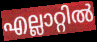
എല്ലാറ്റിൽ